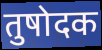
तुषोदक